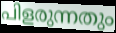
പിളരുന്നതും